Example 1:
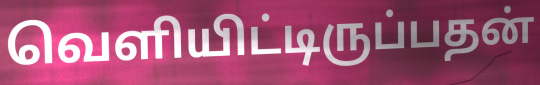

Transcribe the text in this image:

வெளியிட்டிருப்பதன்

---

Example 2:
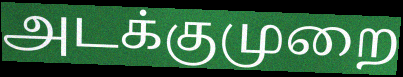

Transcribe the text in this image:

அடக்குமுறை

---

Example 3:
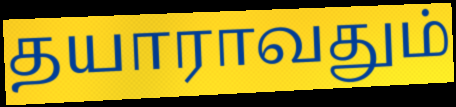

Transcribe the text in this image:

தயாராவதும்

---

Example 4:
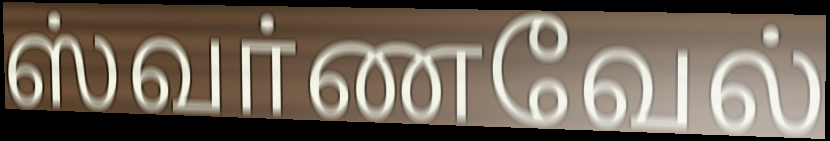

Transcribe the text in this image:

ஸ்வர்ணவேல்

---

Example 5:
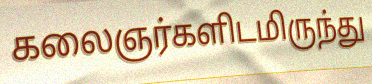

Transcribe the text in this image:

கலைஞர்களிடமிருந்து